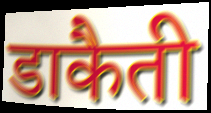
डाकैती